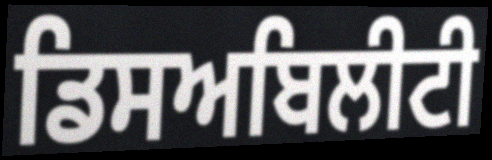
ਡਿਸਅਬਿਲੀਟੀ